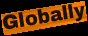
Globally